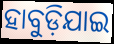
ହାବୁଡ଼ିଯାଇ